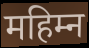
महिम्न